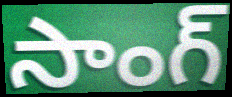
సాంగ్